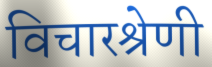
विचारश्रेणी